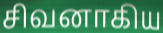
சிவனாகிய